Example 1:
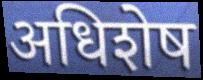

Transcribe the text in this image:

अधिशेष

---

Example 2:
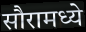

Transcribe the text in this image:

सौरामध्ये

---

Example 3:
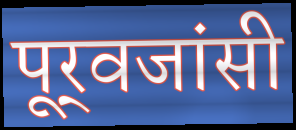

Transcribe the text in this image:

पूर्वजांसी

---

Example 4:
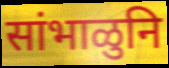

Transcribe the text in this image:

सांभाळुनि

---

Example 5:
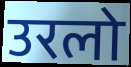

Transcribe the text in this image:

उरलो